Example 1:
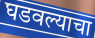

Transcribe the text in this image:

घडवल्याचा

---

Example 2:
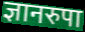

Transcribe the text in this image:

ज्ञानरुपा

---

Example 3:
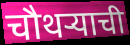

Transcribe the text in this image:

चौथऱ्याची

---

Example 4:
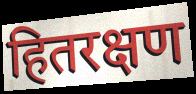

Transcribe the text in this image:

हितरक्षण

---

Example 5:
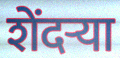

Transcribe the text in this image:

शेंदर्‍या